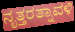
ನೃತ್ತರತ್ನಾವಳಿ